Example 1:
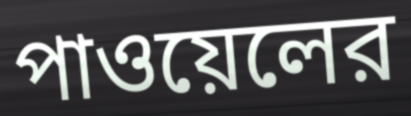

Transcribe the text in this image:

পাওয়েলের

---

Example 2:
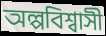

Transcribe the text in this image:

অল্পবিশ্বাসী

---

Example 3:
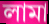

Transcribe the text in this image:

লামা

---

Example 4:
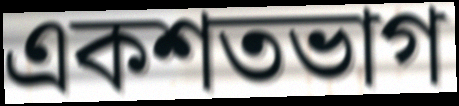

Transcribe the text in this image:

একশতভাগ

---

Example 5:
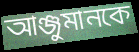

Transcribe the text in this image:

আঞ্জুমানকে